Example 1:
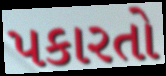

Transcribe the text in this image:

પકારતો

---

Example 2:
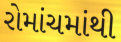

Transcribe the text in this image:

રોમાંચમાંથી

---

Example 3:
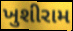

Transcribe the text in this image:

ખુશીરામ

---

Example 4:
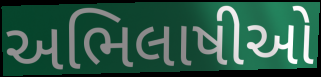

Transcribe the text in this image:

અભિલાષીઓ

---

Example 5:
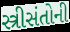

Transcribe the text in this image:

સ્ત્રીસંતોની